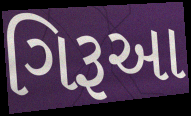
ગિરૂઆ